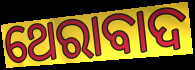
ଥେରାବାଦ